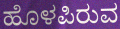
ಹೊಳಪಿರುವ